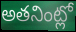
అతనింట్లో